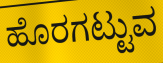
ಹೊರಗಟ್ಟುವ